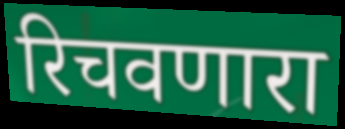
रिचवणारा